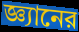
জ্ঞ্যানের